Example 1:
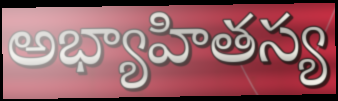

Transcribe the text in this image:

అభ్యాహితస్య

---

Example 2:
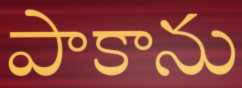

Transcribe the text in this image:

పాకాను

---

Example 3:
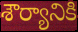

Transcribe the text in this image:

శౌర్యానికి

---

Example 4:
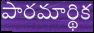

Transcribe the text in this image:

పారమార్థిక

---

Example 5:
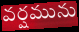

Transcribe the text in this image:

వర్షమును